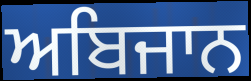
ਅਬਿਜਾਨ